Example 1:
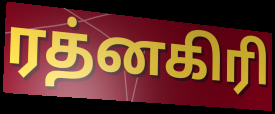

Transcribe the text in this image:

ரத்னகிரி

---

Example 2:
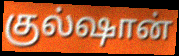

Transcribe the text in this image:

குல்ஷான்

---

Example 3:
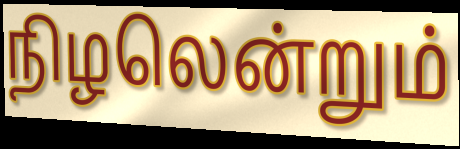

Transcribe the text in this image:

நிழலென்றும்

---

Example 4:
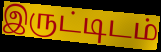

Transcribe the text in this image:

இருட்டிடம்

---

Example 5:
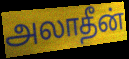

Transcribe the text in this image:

அலாதீன்